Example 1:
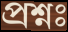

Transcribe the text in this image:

প্ৰশ্নঃ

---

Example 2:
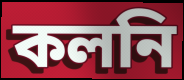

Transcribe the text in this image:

কলনি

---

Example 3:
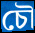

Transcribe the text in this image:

চৌ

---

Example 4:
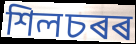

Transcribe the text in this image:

শিলচৰৰ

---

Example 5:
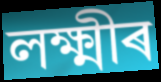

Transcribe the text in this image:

লক্ষ্মীৰ